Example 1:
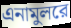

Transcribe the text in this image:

এনামুলরে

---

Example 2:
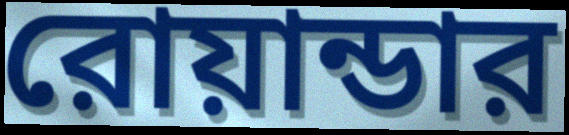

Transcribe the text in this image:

রোয়ান্ডার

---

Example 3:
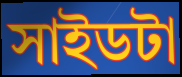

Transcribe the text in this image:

সাইডটা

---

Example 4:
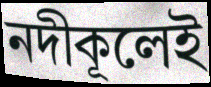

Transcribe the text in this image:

নদীকূলেই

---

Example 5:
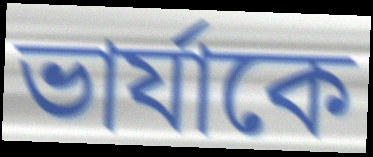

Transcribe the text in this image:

ভার্যাকে